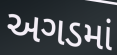
અગડમાં